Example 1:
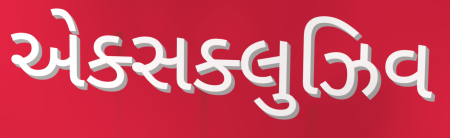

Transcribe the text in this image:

એક્સક્લુઝિવ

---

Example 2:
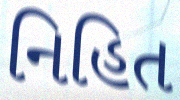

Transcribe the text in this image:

નિહિત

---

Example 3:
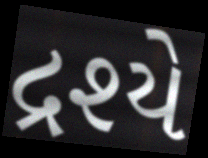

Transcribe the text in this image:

દ્રશ્યે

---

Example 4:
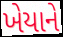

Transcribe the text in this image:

ખેયાને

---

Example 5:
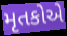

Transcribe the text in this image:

મૃતકોએ